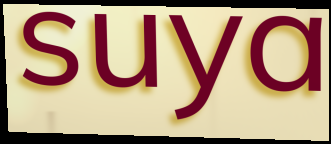
suya